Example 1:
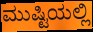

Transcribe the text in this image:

ಮುಷ್ಟಿಯಲ್ಲಿ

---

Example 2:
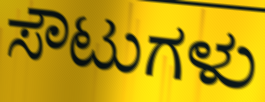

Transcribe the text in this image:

ಸೌಟುಗಳು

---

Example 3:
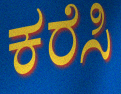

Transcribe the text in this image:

ಕರೆಸಿ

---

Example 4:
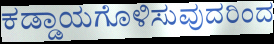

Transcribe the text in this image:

ಕಡ್ಡಾಯಗೊಳಿಸುವುದರಿಂದ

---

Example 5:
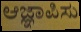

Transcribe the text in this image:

ಆಜ್ಞಾಪಿಸು